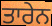
ਤਾਰੇਨ